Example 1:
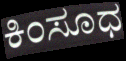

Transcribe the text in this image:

ಕಿಂಸೂಧ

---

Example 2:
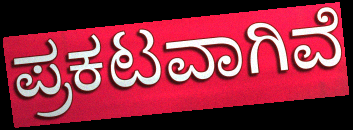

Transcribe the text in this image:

ಪ್ರಕಟವಾಗಿವೆ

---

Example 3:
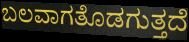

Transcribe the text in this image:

ಬಲವಾಗತೊಡಗುತ್ತದೆ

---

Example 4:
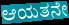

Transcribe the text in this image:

ಆಯತನೇ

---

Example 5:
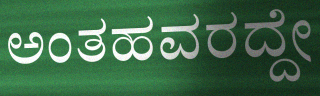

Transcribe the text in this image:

ಅಂತಹವರದ್ದೇ